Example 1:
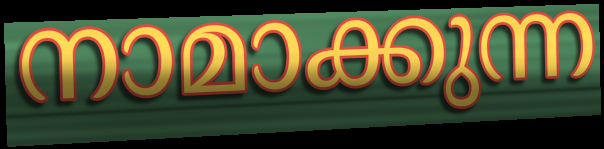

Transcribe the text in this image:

നാമാക്കുന്ന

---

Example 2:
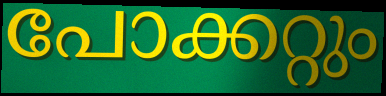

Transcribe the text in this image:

പോക്കറ്റും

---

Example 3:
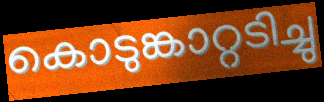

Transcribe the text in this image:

കൊടുങ്കാറ്റടിച്ചു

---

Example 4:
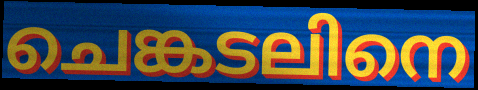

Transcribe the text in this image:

ചെങ്കടലിനെ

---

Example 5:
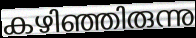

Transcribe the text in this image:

കഴിഞ്ഞിരുന്നു